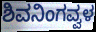
ಶಿವನಿಂಗವ್ವಳ